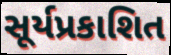
સૂર્યપ્રકાશિત